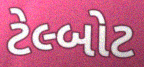
ટેલ્બોટ